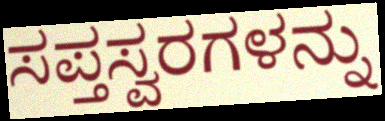
ಸಪ್ತಸ್ವರಗಳನ್ನು